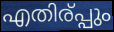
എതിര്പ്പും